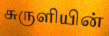
சுருளியின்